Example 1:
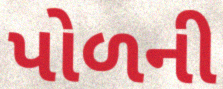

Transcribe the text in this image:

પોળની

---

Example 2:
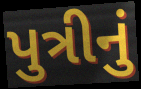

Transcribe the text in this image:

પુત્રીનું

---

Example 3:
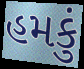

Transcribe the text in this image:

હમકું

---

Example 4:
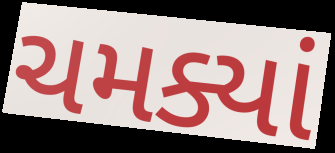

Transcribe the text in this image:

ચમક્યાં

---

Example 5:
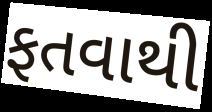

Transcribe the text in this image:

ફતવાથી